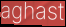
aghast